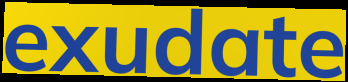
exudate